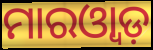
ମାରଓ୍ୱାଡ଼